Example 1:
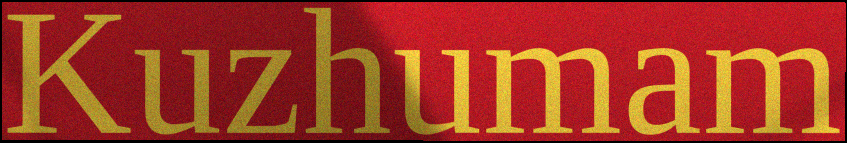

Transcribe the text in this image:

Kuzhumam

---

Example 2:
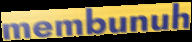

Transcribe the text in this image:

membunuh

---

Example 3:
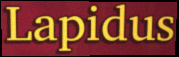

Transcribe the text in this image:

Lapidus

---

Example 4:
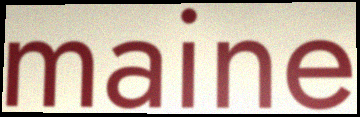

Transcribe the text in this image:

maine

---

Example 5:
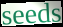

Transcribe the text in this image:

seeds